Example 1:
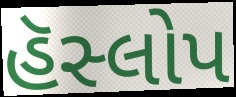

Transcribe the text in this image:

હૅસ્લોપ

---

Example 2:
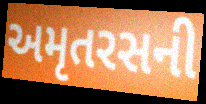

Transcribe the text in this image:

અમૃતરસની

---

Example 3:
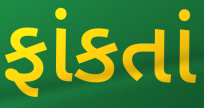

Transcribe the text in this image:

ફાંકતાં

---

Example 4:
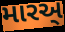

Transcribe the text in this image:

મારઅ્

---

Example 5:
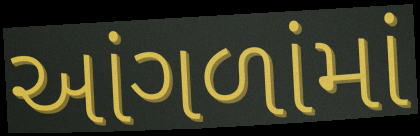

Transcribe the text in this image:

આંગળાંમાં